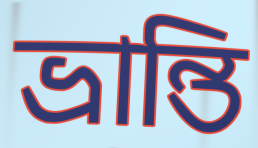
ভ্রান্তি